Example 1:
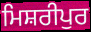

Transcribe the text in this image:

ਮਿਸ਼ਰੀਪੁਰ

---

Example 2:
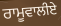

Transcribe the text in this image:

ਰਾਮੂਵਾਲੀਏ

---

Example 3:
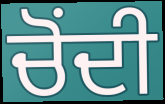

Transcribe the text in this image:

ਚੋੰਦੀ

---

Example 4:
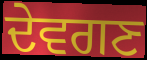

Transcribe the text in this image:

ਦੇਵਗਣ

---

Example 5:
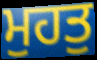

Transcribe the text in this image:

ਮੁਹਤੁ